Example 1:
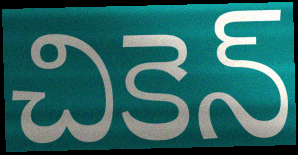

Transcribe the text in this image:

చికెన్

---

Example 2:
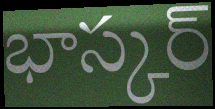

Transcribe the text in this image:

భాస్కర్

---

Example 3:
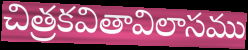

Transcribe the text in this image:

చిత్రకవితావిలాసము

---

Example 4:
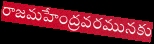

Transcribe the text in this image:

రాజమహేంద్రవరమునకు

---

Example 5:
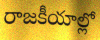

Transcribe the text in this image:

రాజకీయాల్లో